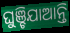
ଘୁଞ୍ଚିଯାଆନ୍ତି